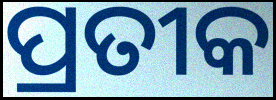
ପ୍ରତୀକ